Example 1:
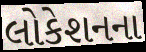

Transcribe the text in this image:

લોકેશનના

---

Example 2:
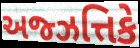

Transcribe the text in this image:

અજ્ઝત્તિકે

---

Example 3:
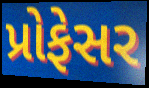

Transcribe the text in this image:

પ્રોફેસર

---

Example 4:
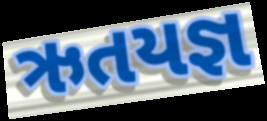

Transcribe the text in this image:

ઋતયજ્ઞ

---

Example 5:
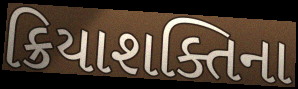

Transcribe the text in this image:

ક્રિયાશક્તિના